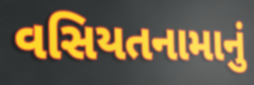
વસિયતનામાનું